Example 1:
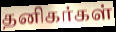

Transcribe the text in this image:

தனிகர்கள்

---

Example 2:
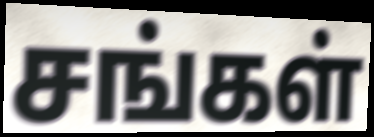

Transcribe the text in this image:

சங்கள்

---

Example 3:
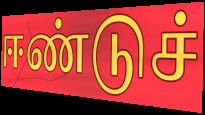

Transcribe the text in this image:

ஈண்டுச்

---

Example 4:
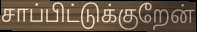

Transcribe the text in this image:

சாப்பிட்டுக்குறேன்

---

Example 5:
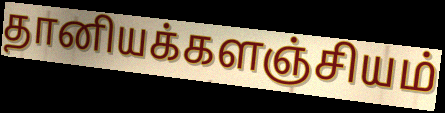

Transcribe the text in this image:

தானியக்களஞ்சியம்